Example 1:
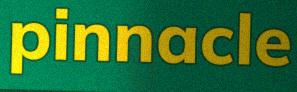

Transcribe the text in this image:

pinnacle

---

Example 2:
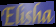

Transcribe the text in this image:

Elisha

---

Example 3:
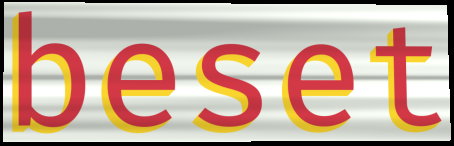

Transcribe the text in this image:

beset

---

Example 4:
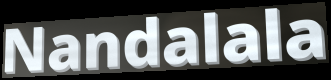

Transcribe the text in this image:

Nandalala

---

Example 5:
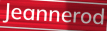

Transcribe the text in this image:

Jeannerod